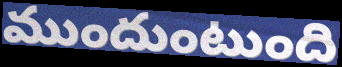
ముందుంటుంది